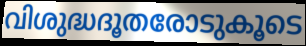
വിശുദ്ധദൂതരോടുകൂടെ